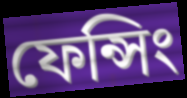
ফেন্সিং